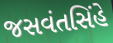
જસવંતસિંહે